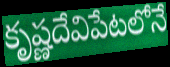
కృష్ణదేవిపేటలోనే